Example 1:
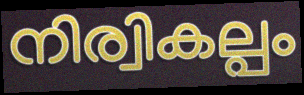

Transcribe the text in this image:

നിര്വികല്പം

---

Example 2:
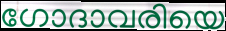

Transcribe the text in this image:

ഗോദാവരിയെ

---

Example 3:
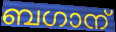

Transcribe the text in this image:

ബഗാന്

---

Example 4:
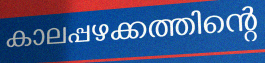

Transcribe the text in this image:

കാലപ്പഴക്കത്തിന്റെ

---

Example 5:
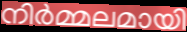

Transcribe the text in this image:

നിർമ്മലമായി